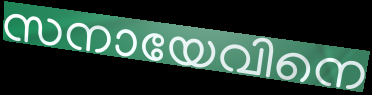
സനായേവിനെ